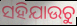
ସହିଯାଉଚୁ